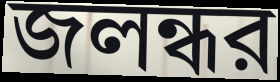
জলন্ধর